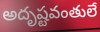
అదృష్టవంతులే